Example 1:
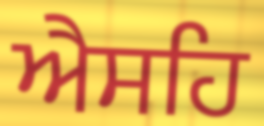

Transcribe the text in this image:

ਐਸਹਿ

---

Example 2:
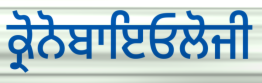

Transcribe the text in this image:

ਕ੍ਰੋਨੋਬਾਇਓਲੋਜੀ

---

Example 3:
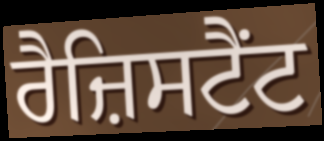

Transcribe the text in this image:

ਰੈਜ਼ਿਸਟੈਂਟ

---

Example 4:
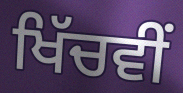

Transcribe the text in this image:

ਖਿੱਚਵੀਂ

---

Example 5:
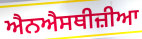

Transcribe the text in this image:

ਐਨਐਸਥੀਜ਼ੀਆ